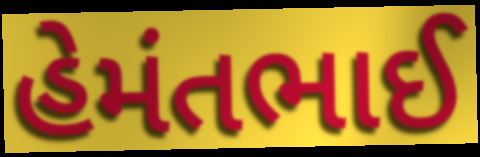
હેમંતભાઈ